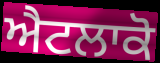
ਐਟਲਾਕੋ